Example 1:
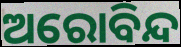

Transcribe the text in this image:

ଅରୋବିନ୍ଦ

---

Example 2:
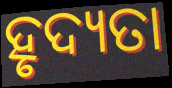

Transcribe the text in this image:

ହୃଦ୍ୟତା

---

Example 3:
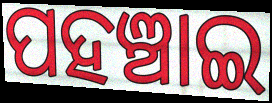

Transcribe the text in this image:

ପହଞ୍ଚାଇ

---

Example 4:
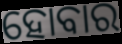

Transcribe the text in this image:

ହୋବାର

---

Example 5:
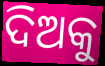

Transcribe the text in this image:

ଦିଅକୁ